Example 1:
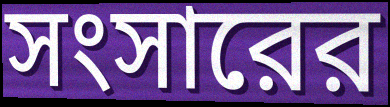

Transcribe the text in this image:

সংসারের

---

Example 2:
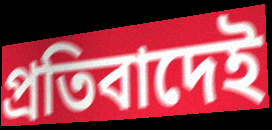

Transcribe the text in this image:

প্রতিবাদেই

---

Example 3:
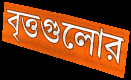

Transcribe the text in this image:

বৃত্তগুলোর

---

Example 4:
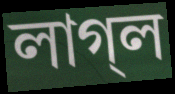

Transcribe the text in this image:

লাগ্‌ল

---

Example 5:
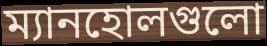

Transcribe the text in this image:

ম্যানহোলগুলো